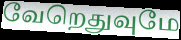
வேறெதுவுமே